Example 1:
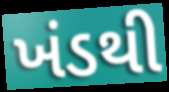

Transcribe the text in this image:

ખંડથી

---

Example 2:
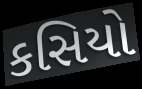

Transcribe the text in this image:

કસિયો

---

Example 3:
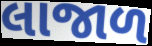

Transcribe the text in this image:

લાજાળ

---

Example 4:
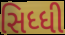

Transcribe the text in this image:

સિધ્ધી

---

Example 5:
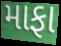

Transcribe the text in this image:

માફા